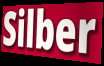
Silber